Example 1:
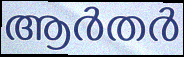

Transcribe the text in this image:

ആർതർ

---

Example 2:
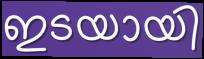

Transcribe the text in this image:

ഇടയായി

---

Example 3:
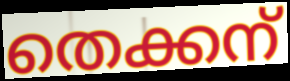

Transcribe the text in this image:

തെക്കന്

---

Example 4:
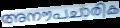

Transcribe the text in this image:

അനൗപചാരിക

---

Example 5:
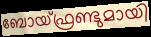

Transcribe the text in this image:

ബോയ്ഫ്രണ്ടുമായി